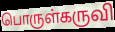
பொருள்கருவி